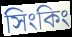
সিংকিং